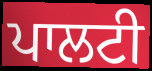
ਪਾਲਟੀ